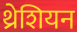
थ्रेशियन